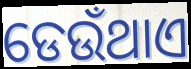
ଡେଉଁଥାଏ